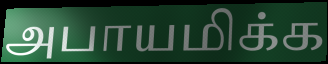
அபாயமிக்க